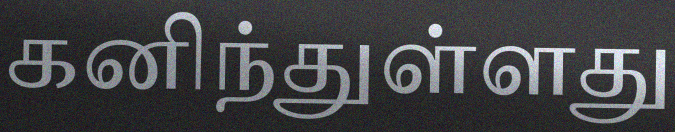
கனிந்துள்ளது